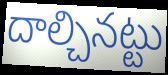
దాల్చినట్టు